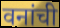
वनांची